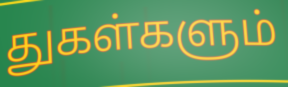
துகள்களும்